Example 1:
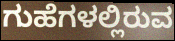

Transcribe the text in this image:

ಗುಹೆಗಳಲ್ಲಿರುವ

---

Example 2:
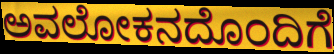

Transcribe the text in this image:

ಅವಲೋಕನದೊಂದಿಗೆ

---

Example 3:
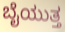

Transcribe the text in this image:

ಬೈಯುತ್ತ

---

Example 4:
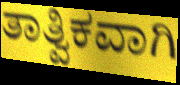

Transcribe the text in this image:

ತಾತ್ವಿಕವಾಗಿ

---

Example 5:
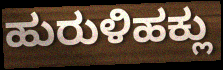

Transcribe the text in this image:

ಹುರುಳಿಹಕ್ಲು